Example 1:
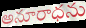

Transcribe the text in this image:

అనూరాధను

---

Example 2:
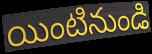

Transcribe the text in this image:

యింటినుండి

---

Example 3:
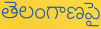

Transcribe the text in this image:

తెలంగాణపై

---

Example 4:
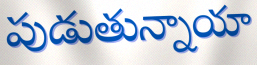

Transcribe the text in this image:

పుడుతున్నాయా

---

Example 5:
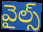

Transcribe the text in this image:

వైల్స్